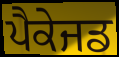
ਪੈਕੇਜਡ